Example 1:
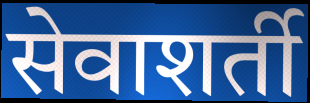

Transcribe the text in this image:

सेवाशर्ती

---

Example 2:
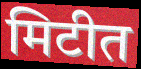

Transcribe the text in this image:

मिटीत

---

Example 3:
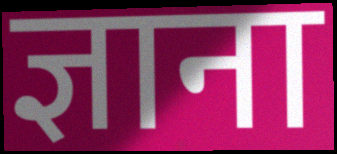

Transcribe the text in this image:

ज्ञाना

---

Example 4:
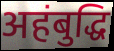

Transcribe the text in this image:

अहंबुद्धि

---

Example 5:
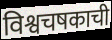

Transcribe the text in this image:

विश्वचषकाची